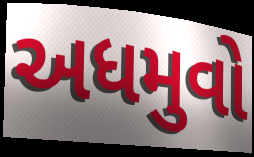
અધમુવો